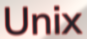
Unix